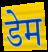
डेम